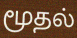
மூதல்